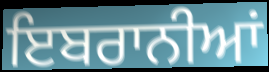
ਇਬਰਾਨੀਆਂ